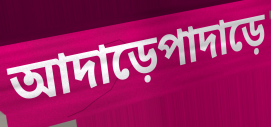
আদাড়েপাদাড়ে